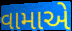
વામાએ